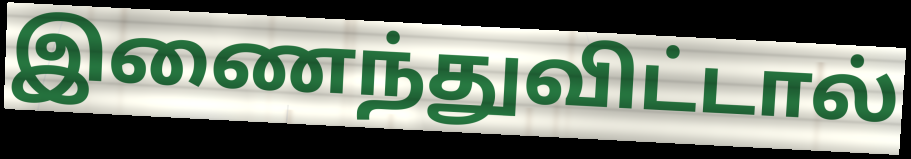
இணைந்துவிட்டால்